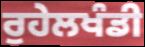
ਰੁਹੇਲਖੰਡੀ